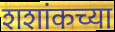
शशांकच्या